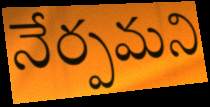
నేర్పమని